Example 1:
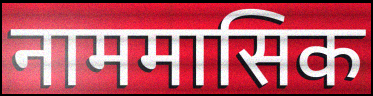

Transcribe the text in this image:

नाममासिक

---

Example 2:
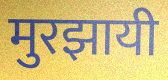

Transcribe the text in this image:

मुरझायी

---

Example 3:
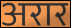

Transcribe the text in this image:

अरार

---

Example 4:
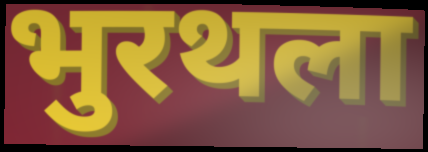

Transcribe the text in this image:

भुरथला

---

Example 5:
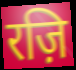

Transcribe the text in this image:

रज़ि